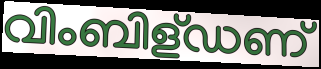
വിംബിള്ഡണ്